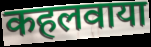
कहलवाया